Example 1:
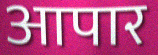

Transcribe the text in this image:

आपार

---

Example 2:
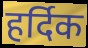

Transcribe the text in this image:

हर्दिक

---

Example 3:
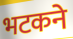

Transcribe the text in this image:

भटकने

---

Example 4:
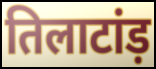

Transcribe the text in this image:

तिलाटांड़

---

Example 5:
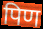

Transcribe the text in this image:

पिण